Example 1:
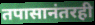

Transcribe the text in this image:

तपासानंतरही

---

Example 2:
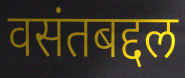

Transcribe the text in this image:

वसंतबद्दल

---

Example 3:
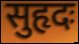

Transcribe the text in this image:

सुहृदः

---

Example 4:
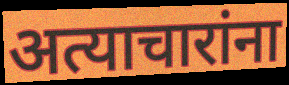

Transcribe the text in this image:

अत्याचारांना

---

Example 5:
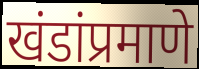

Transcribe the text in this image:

खंडांप्रमाणे